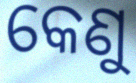
କେଣୁ